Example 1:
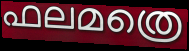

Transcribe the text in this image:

ഫലമത്രെ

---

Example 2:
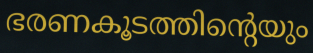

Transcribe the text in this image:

ഭരണകൂടത്തിന്റെയും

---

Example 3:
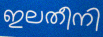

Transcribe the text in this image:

ഇലതീനി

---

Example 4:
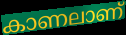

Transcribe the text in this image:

കാണലാണ്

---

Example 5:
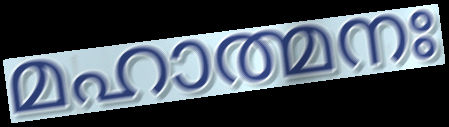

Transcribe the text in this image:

മഹാത്മനഃ